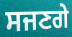
ਸਜਣਗੇ